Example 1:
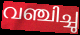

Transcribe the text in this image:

വഞ്ചിച്ചു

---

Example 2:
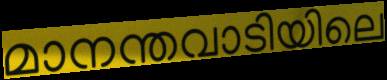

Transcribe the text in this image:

മാനന്തവാടിയിലെ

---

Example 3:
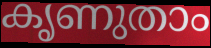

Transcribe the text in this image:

കൃണുതാം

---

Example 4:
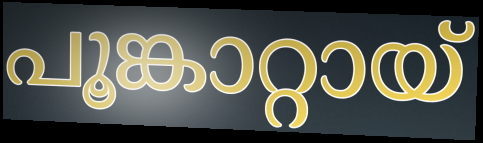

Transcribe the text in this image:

പൂങ്കാറ്റായ്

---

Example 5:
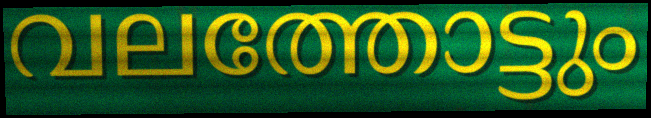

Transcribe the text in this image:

വലത്തോട്ടും